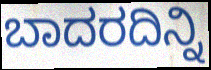
ಬಾದರದಿನ್ನಿ